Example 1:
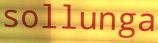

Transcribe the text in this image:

sollunga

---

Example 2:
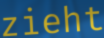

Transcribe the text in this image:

zieht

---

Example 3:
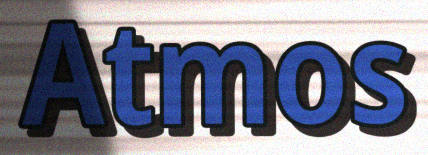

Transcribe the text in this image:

Atmos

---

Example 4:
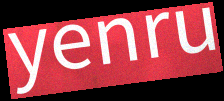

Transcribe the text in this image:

yenru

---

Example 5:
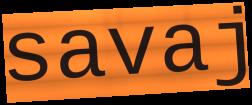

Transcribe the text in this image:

savaj